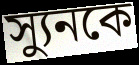
স্যুনকে